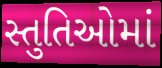
સ્તુતિઓમાં